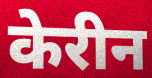
केरीन